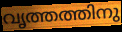
വൃത്തത്തിനു